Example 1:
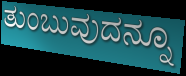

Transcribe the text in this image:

ತುಂಬುವುದನ್ನೂ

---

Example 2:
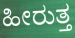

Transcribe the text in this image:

ಹೀರುತ್ತ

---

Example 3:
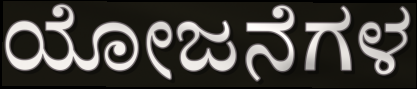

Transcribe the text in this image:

ಯೋಜನೆಗಳ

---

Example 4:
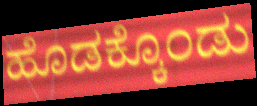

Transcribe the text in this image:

ಹೊಡಕ್ಕೊಂಡು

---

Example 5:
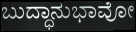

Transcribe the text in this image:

ಬುದ್ಧಾನುಭಾವೋ